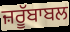
ਜ਼ਰੂੱਬਾਬਲ